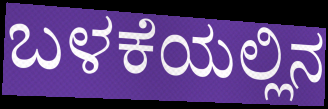
ಬಳಕೆಯಲ್ಲಿನ